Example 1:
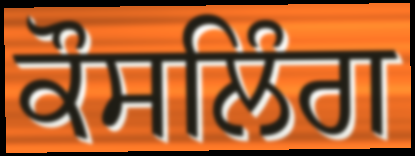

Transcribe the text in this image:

ਕੌਸਲਿੰਗ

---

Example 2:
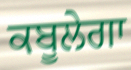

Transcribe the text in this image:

ਕਬੂਲੇਗਾ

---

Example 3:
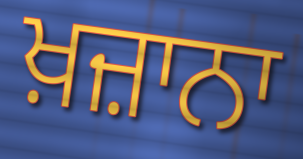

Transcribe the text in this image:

ਖ਼ਜ਼ਾਨਾ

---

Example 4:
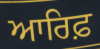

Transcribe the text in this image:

ਆਰਿਫ਼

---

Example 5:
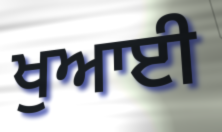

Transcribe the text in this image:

ਖੁਆਈ